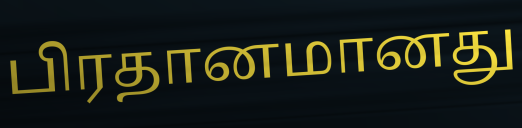
பிரதானமானது